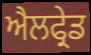
ਐਲਫ੍ਰੇਡ